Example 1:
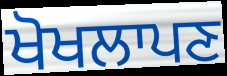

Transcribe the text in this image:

ਖੋਖਲਾਪਣ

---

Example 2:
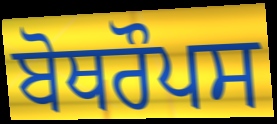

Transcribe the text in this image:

ਬੋਥਰੌਪਸ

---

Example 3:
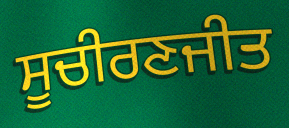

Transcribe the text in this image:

ਸੂਚੀਰਣਜੀਤ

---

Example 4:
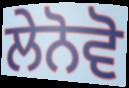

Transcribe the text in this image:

ਲੇਨੋਵੋ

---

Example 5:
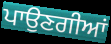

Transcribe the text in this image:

ਪਾਉਣਗੀਆਂ